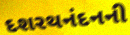
દશરથનંદનની